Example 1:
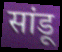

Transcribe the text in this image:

सांडू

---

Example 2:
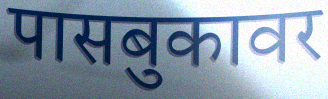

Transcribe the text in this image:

पासबुकावर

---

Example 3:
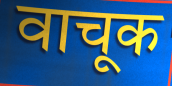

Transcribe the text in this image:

वाचूक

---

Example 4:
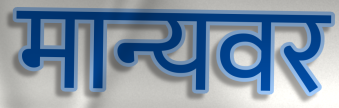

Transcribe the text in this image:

मान्यवर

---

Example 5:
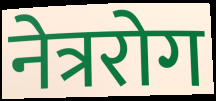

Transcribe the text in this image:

नेत्ररोग